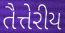
તૈત્તેરીય